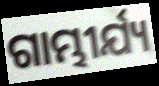
ଗାମ୍ଭୀର୍ଯ୍ୟ